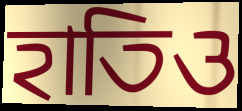
হাতিও